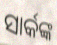
ସାର୍କଙ୍କ